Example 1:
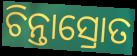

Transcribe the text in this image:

ଚିନ୍ତାସ୍ରୋତ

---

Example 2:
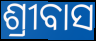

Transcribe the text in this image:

ଶ୍ରୀବାସ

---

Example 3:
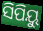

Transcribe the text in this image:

ସିପିୟୁ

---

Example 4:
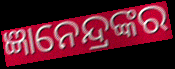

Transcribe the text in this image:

ଜ୍ଞାନେନ୍ଦ୍ରଙ୍କର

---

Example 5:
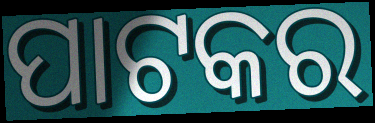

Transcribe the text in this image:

ପାଟକର